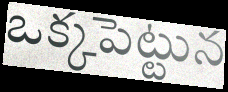
ఒక్కపెట్టున